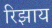
रिझाय